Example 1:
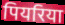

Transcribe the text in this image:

पियरिया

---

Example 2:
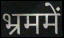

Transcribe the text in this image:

भ्रममें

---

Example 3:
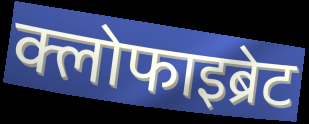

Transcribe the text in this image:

क्लोफाइब्रेट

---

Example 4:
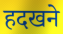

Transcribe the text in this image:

हदखने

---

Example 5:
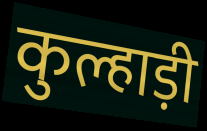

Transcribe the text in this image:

कुल्हाड़ी